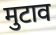
मुटाव